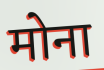
मोना